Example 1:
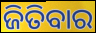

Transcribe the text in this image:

ଜିତିବାର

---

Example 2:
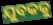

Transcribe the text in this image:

ଯୁବକକୁ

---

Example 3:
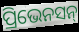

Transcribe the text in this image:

ପ୍ରିଭେନସନ୍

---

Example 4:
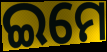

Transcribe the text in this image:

ଇମେ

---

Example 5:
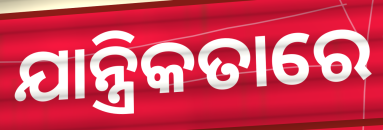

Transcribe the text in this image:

ଯାନ୍ତ୍ରିକତାରେ